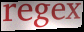
regex